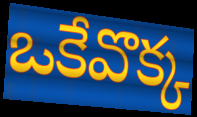
ఒకేవొక్క